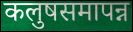
कलुषसमापन्न